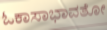
ಓಕಾಸಾಭಾವತೋ